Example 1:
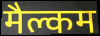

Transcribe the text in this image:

मैल्कम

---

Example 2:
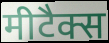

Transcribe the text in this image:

मीटैक्स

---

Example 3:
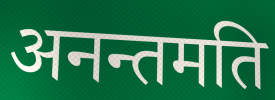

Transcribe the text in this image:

अनन्तमति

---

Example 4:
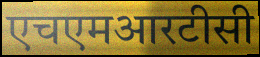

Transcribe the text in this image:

एचएमआरटीसी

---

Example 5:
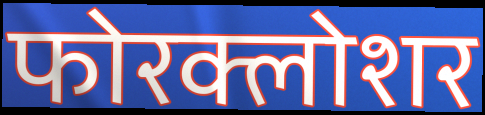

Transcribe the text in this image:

फोरक्लोशर